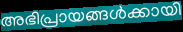
അഭിപ്രായങ്ങൾക്കായി